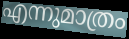
എന്നുമാത്രം